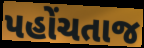
પહોંચતાજ